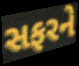
સફરને